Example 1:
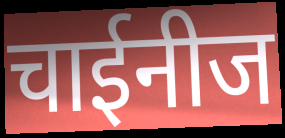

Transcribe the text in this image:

चाईनीज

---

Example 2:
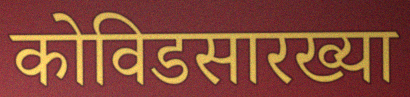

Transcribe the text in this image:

कोविडसारख्या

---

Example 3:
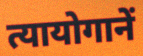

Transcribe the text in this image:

त्यायोगानें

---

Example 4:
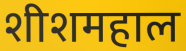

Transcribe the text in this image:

शीशमहाल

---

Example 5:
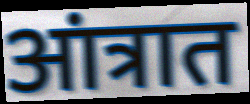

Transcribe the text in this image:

आंत्रात